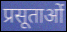
प्रसूताओं